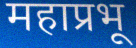
महाप्रभू